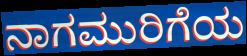
ನಾಗಮುರಿಗೆಯ